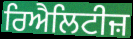
ਰਿਐਲਿਟੀਜ਼